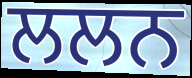
ਲਲਨ